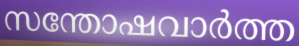
സന്തോഷവാർത്ത